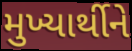
મુખ્યાર્થીને